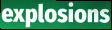
explosions